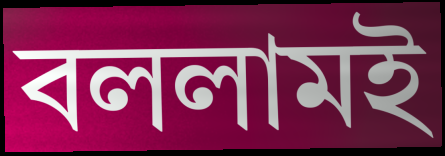
বললামই